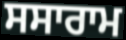
ਸਸਾਰਾਮ